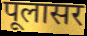
पूलासर